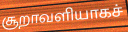
சூறாவளியாகச்